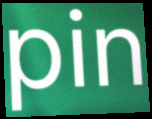
pin